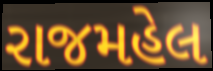
રાજમહેલ